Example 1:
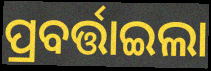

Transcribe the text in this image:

ପ୍ରବର୍ତ୍ତାଇଲା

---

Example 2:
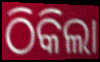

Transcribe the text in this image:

ଠିକିଲା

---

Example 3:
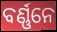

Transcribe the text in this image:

ବର୍ଣ୍ଣନେ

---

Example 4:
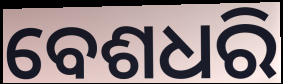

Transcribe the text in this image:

ବେଶଧରି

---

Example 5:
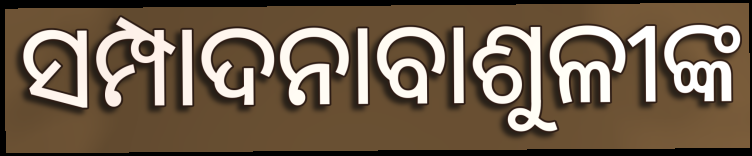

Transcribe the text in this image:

ସମ୍ପାଦନାବାଶୁଳୀଙ୍କ